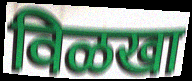
विळखा